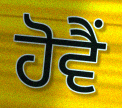
ਹੋਵੈਂ